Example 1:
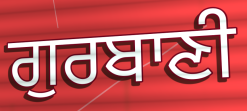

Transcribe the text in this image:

ਗੁਰਬਾਣੀ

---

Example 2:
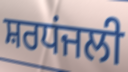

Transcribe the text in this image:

ਸ਼ਰਧਂਜਲੀ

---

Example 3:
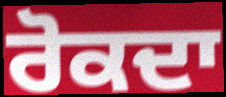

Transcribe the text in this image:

ਰੋਕਦਾ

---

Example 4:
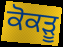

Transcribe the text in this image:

ਕੋਕੜੂ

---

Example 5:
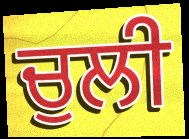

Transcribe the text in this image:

ਚੁਲੀ